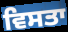
ਵਿਸਤਾ